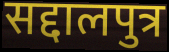
सद्दालपुत्र